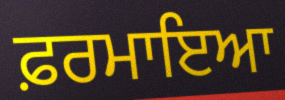
ਫ਼ਰਮਾਇਆ